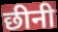
छीनी